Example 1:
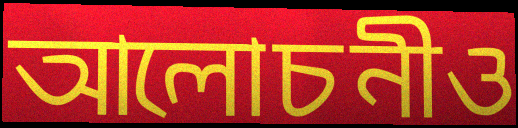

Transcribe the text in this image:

আলোচনীও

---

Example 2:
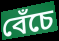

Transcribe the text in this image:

বেঁচে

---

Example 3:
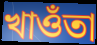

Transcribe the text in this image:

খাওঁতা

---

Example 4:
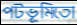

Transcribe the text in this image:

পটভূমিতো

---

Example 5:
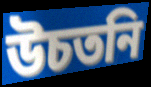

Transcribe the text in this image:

উচতনি